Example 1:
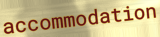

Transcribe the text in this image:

accommodation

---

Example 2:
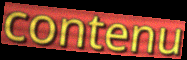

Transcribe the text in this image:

contenu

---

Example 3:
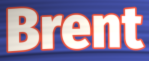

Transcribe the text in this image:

Brent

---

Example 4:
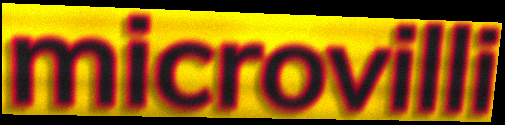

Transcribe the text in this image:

microvilli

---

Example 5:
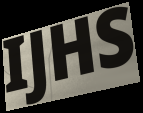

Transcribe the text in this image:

IJHS